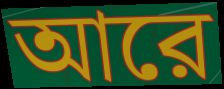
আরে